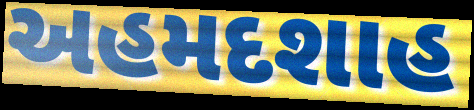
અહમદશાહ